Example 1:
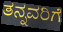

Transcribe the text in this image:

ತನ್ನವರಿಗೆ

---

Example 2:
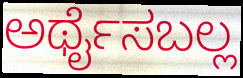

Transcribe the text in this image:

ಅರ್ಥೈಸಬಲ್ಲ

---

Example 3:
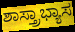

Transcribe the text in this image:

ಶಾಸ್ತ್ರಾಭ್ಯಾಸ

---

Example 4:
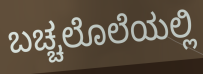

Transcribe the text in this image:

ಬಚ್ಚಲೊಲೆಯಲ್ಲಿ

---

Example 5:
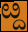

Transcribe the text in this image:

ೞ್ದ